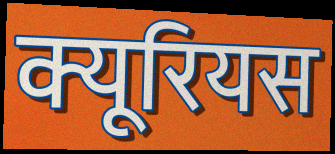
क्यूरियस